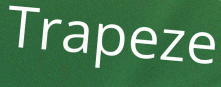
Trapeze